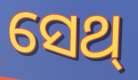
ସେଥ୍